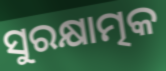
ସୁରକ୍ଷାତ୍ମକ